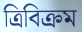
ত্রিবিক্রম